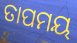
ତାପମୟ